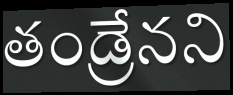
తండ్రేనని